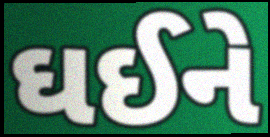
ઘઈને